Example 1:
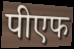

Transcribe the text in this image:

पीएफ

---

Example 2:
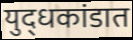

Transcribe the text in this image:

युद्धकांडात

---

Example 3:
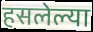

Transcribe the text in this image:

हसलेल्या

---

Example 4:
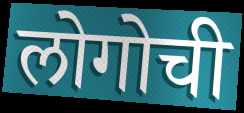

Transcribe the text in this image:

लोगोची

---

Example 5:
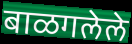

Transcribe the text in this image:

बाळगलेले